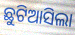
ଛୁଟିଆସିଲା